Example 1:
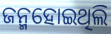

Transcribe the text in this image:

ଜନ୍ମହୋଇଥିଲି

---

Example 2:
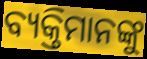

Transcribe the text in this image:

ବ୍ଯକ୍ତିମାନଙ୍କୁ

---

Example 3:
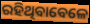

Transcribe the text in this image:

ରହିଥିବାବେଳେ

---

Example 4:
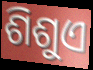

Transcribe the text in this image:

ଶିଶୁଏ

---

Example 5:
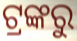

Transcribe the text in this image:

ଟ୍ରଙ୍କରୁ